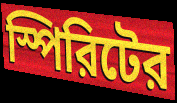
স্পিরিটের